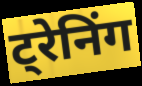
ट्रेनिंग